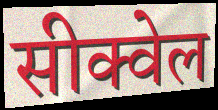
सीक्वेल